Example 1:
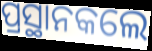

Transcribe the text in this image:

ପ୍ରସ୍ଥାନକଲେ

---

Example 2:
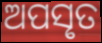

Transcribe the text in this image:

ଅପସୃତ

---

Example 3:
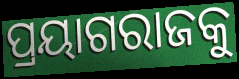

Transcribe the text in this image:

ପ୍ରୟାଗରାଜକୁ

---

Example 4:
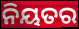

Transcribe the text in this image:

ନିୟତର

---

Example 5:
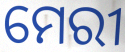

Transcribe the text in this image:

ମେରୀ